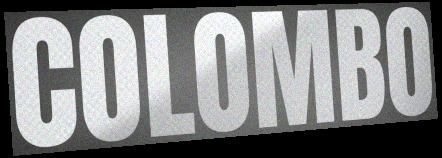
COLOMBO